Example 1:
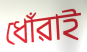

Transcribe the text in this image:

ধোঁৱাই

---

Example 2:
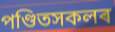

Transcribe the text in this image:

পণ্ডিতসকলৰ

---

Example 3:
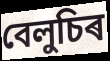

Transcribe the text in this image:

বেলুচিৰ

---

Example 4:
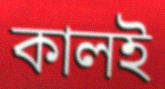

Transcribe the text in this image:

কালই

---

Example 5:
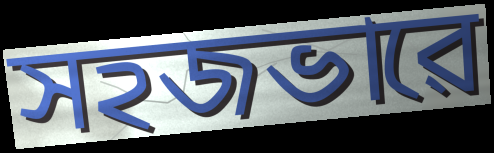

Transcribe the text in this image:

সহজভাৱে